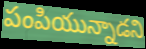
పంపియున్నాడని